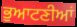
ਭੁਆਟਣੀਆਂ